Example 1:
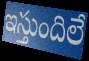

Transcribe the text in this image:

ఇస్తుందిలే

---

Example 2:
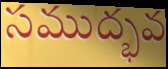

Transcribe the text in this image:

సముద్భవ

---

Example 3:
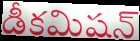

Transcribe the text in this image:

డీకమిషన్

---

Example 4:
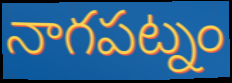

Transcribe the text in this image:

నాగపట్నం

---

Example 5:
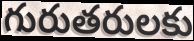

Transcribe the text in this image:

గురుతరులకు